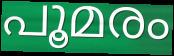
പൂമരം